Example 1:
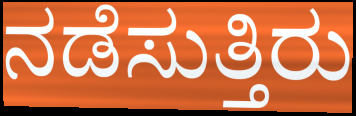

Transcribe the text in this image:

ನಡೆಸುತ್ತಿರು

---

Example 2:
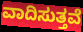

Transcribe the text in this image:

ವಾದಿಸುತ್ತವೆ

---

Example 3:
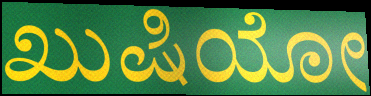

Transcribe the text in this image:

ಖುಷಿಯೋ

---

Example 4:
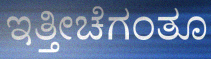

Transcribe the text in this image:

ಇತ್ತೀಚೆಗಂತೂ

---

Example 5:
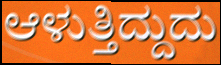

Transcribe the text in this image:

ಆಳುತ್ತಿದ್ದುದು